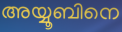
അയ്യൂബിനെ